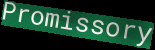
Promissory